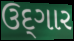
ઉદ્‌ગાર